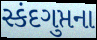
સ્કંદગુપ્તના